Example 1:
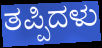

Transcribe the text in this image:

ತಪ್ಪಿದಳು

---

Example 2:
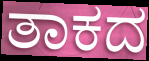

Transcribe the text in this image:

ತಾಕದ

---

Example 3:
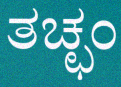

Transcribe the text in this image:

ತಚ್ಛಂ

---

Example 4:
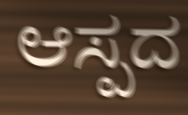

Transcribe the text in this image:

ಆಸ್ಪದ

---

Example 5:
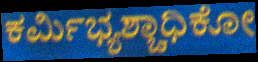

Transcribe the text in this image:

ಕರ್ಮಿಭ್ಯಶ್ಚಾಧಿಕೋ